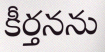
కీర్తనను